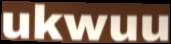
ukwuu